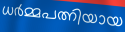
ധർമ്മപത്നിയായ